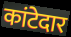
कांटेदार